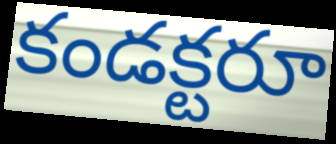
కండక్టరూ